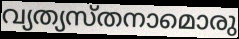
വ്യത്യസ്തനാമൊരു